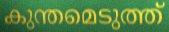
കുന്തമെടുത്ത്